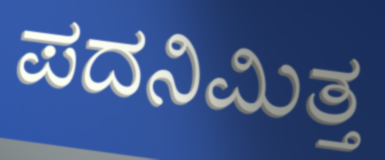
ಪದನಿಮಿತ್ತ